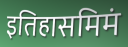
इतिहासमिमं